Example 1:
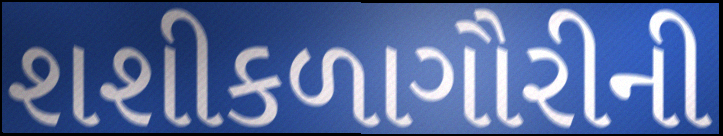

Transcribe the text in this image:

શશીકળાગૌરીની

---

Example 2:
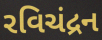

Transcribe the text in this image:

રવિચંદ્રન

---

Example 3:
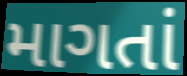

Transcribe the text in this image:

માગતાં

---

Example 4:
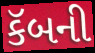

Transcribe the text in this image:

કૅબની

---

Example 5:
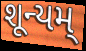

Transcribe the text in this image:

શૂન્યમ્